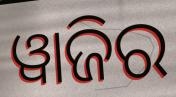
ୱାଜିର